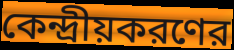
কেন্দ্রীয়করণের